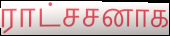
ராட்சசனாக